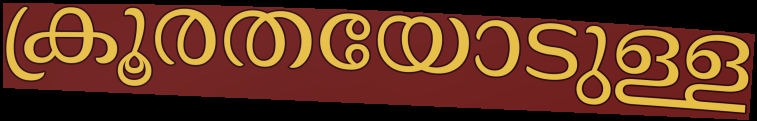
ക്രൂരതയോടുള്ള